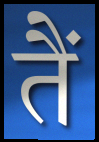
तैं